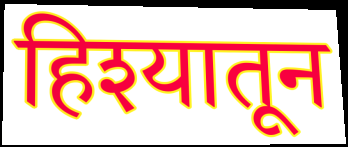
हिश्यातून